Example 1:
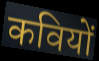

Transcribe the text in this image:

कवियों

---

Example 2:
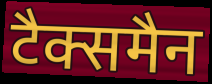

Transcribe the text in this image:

टैक्समैन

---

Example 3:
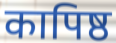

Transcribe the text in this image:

कापिष्ठ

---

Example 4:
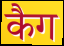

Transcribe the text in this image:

कैग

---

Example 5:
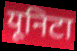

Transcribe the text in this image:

यूनिटा